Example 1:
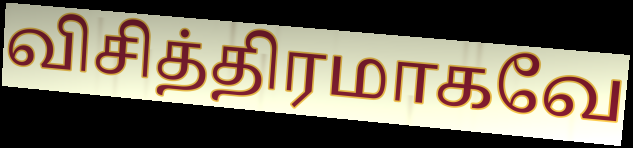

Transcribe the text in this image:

விசித்திரமாகவே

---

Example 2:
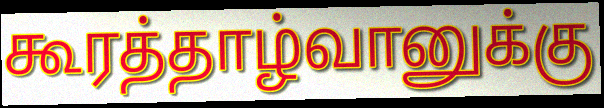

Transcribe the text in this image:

கூரத்தாழ்வானுக்கு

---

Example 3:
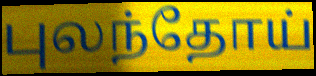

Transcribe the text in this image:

புலந்தோய்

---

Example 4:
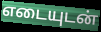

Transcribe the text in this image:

எடையுடன்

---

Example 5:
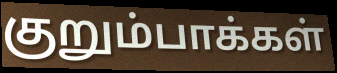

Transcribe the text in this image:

குறும்பாக்கள்